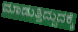
ಮಾಡುತ್ತಿದ್ದುದಕ್ಕೆ